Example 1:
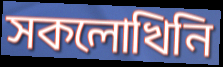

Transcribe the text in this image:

সকলোখিনি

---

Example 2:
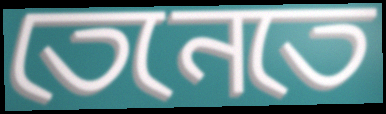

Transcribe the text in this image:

তেনেতে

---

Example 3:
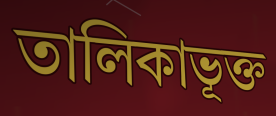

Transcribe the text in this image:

তালিকাভূক্ত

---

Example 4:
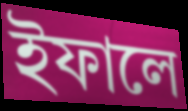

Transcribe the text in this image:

ইফালে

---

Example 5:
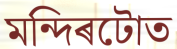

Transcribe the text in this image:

মন্দিৰটোত